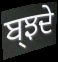
ਬ੍ਝਦੇ